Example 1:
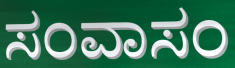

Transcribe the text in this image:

ಸಂವಾಸಂ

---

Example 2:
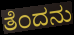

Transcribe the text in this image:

ತೆಂದನು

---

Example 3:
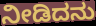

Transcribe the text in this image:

ನೀಡಿದನು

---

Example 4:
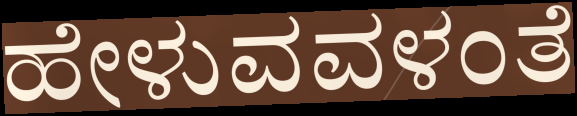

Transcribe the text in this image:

ಹೇಳುವವಳಂತೆ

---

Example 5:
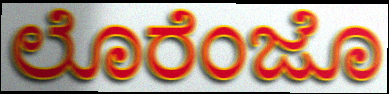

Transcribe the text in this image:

ಲೊರೆಂಜೊ